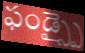
ఫండ్స్పై